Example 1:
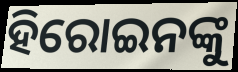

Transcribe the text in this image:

ହିରୋଇନଙ୍କୁ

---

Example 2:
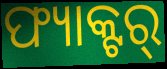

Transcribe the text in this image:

ଫ୍ୟାକ୍ଟର୍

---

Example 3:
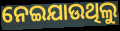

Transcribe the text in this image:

ନେଇଯାଉଥିଲୁ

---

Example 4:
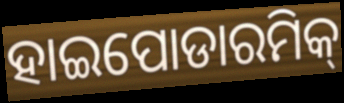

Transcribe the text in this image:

ହାଇପୋଡାରମିକ୍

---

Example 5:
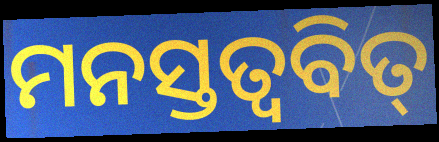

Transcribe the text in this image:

ମନସ୍ତତ୍ୱବିତ୍